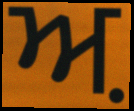
ਅ਼